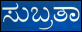
ಸುಬ್ರತಾ